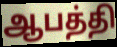
ஆபத்தி